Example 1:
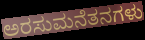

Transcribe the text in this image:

ಅರಸುಮನೆತನಗಳು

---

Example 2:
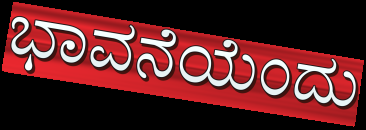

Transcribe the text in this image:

ಭಾವನೆಯೆಂದು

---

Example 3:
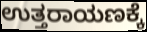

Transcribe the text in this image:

ಉತ್ತರಾಯಣಕ್ಕೆ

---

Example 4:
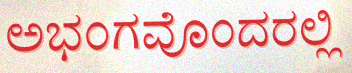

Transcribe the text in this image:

ಅಭಂಗವೊಂದರಲ್ಲಿ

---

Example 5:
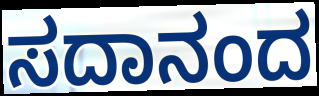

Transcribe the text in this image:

ಸದಾನಂದ